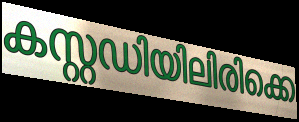
കസ്റ്റഡിയിലിരിക്കെ